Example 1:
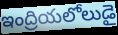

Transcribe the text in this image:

ఇంద్రియలోలుడై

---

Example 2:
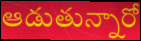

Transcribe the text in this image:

ఆడుతున్నారో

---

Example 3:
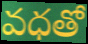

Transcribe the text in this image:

వధతో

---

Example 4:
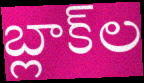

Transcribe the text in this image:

బ్లాక్‌ల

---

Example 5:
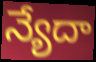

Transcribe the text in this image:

న్యేదా